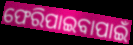
ଫେରିପାଇବାପାଇଁ